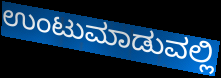
ಉಂಟುಮಾಡುವಲ್ಲಿ